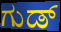
ಗುಡ್